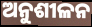
ଅନୁଶୀଳନ